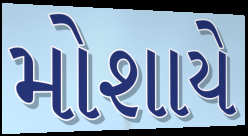
મોશાયે